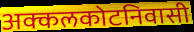
अक्कलकोटनिवासी